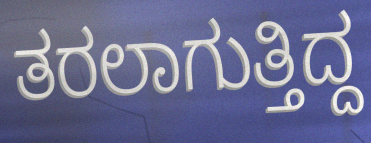
ತರಲಾಗುತ್ತಿದ್ದ